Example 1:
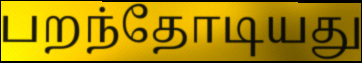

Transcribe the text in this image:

பறந்தோடியது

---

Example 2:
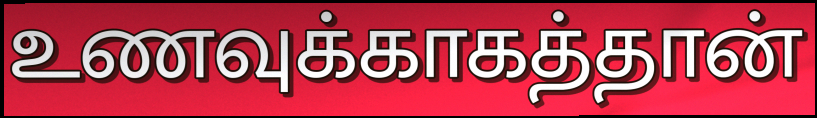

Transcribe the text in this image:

உணவுக்காகத்தான்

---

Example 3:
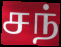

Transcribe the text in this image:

சந்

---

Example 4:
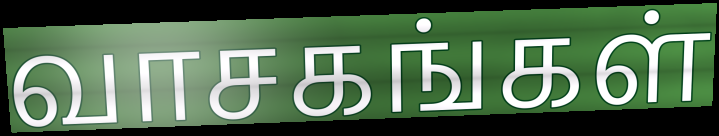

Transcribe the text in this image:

வாசகங்கள்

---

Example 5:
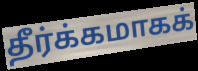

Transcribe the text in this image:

தீர்க்கமாகக்